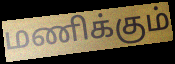
மணிக்கும்